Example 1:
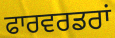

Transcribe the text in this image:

ਫਾਰਵਰਡਰਾਂ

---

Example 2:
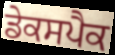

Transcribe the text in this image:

ਡੇਕਸਪੈਕ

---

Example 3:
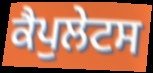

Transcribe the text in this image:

ਕੈਪੁਲੇਟਸ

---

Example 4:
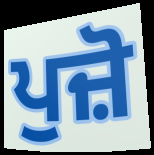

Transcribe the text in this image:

ਪੁਜ਼ੋ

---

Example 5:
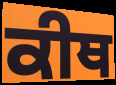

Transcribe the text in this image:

ਕੀਥ